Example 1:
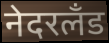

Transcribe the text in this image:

नेदरलँड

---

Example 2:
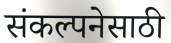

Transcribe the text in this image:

संकल्पनेसाठी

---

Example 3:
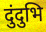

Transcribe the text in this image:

दुंदुभि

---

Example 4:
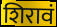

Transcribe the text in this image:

शिरावं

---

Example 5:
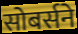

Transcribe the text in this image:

सोबर्सने